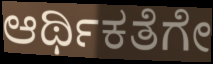
ಆರ್ಥಿಕತೆಗೇ